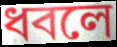
ধবলে